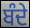
ਬੰਦੇ